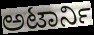
ಅಟಾರ್ನಿ